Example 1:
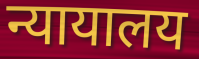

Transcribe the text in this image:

न्यायालय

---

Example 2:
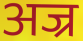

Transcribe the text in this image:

अज्र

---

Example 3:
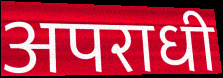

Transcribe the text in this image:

अपराधी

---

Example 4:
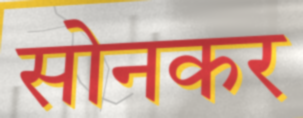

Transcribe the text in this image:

सोनकर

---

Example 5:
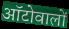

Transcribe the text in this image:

ऑटोवालों